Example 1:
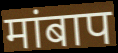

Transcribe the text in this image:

मांबाप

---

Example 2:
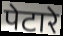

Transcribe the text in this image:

पेटारे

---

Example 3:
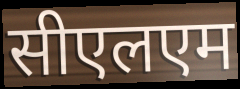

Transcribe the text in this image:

सीएलएम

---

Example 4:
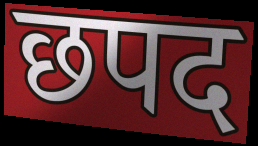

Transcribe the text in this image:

छपद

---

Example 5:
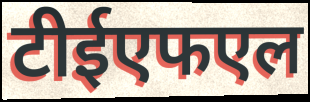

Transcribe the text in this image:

टीईएफएल